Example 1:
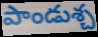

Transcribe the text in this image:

పాండుశ్చ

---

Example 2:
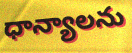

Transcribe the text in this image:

ధాన్యాలను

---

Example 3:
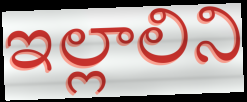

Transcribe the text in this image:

ఇల్లాలిని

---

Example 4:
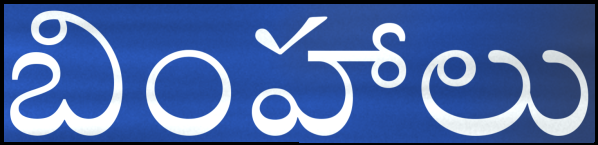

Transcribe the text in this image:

బింహాలు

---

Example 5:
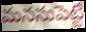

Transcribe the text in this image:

మనసుపెట్టే